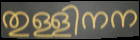
തുള്ളിനന